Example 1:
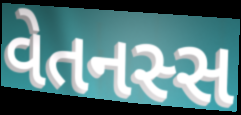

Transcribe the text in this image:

વેતનસ્સ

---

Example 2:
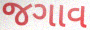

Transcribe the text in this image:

જગાવ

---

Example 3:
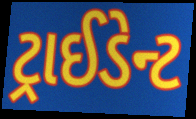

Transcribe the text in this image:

ટ્રાઈડેન્ટ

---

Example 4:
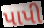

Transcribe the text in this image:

પાપી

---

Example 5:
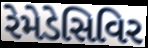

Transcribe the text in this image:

રેમેડેસિવિર